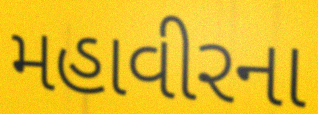
મહાવીરના